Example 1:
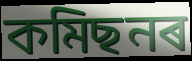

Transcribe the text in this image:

কমিছনৰ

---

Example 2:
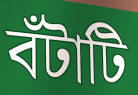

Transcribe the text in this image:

বঁটাটি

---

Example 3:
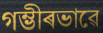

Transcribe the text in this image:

গম্ভীৰভাৱে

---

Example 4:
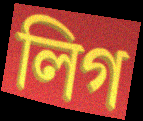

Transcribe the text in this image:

লিগ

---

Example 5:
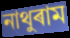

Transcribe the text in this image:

নাথুৰাম